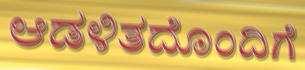
ಆಡಳಿತದೊಂದಿಗೆ